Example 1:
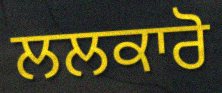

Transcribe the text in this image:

ਲਲਕਾਰੋ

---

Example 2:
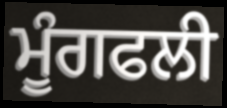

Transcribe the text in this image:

ਮੂੰਗਫਲੀ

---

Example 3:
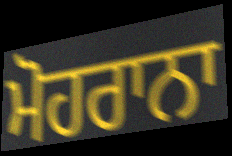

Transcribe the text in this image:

ਮੋਹਰਾਨਾ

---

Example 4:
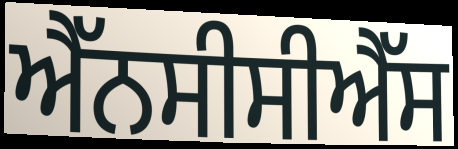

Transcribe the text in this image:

ਐੱਨਸੀਸੀਐੱਸ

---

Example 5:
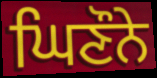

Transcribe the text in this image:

ਘਿਣੌਨੇ